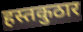
हस्तकुठार